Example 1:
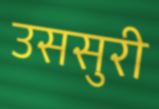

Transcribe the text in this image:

उससुरी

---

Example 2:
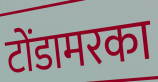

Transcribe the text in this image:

टोंडामरका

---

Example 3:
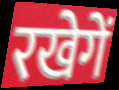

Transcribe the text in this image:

रखेगें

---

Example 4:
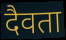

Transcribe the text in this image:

दैवता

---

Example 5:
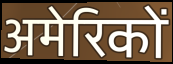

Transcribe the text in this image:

अमेरिकों